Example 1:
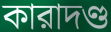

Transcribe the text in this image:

কারাদণ্ড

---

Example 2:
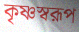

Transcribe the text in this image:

কৃষ্ণস্বরূপ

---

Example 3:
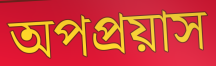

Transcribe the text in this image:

অপপ্রয়াস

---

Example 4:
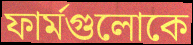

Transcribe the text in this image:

ফার্মগুলোকে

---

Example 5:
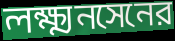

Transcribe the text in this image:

লক্ষ্মনসেনের